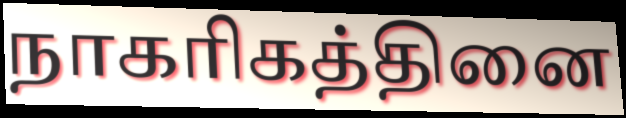
நாகரிகத்தினை